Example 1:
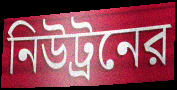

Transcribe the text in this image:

নিউট্রনের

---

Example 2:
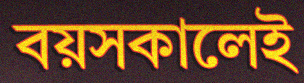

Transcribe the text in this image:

বয়সকালেই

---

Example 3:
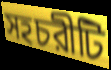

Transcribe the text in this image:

সহচরীটি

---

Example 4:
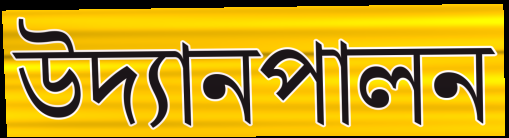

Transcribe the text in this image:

উদ্যানপালন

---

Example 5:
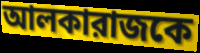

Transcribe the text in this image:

আলকারাজকে